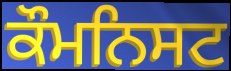
ਕੌਮਨਿਸਟ